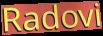
Radovi